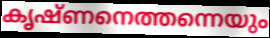
കൃഷ്ണനെത്തന്നെയും